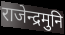
राजेन्द्रमुनि